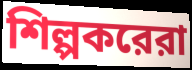
শিল্পকরেরা